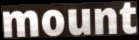
mount